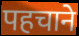
पहचाने